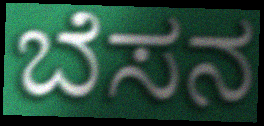
ಬೆಸನ